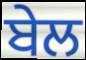
ਬੇਲ